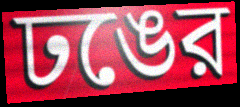
ঢঙের